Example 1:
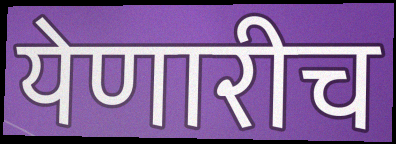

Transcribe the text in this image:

येणारीच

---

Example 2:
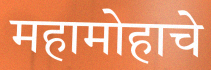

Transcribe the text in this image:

महामोहाचे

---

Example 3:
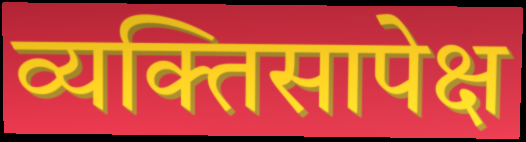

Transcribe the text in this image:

व्यक्तिसापेक्ष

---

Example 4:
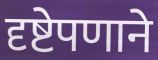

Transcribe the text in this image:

दृष्टेपणाने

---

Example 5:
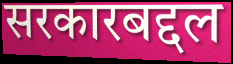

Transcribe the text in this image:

सरकारबद्दल